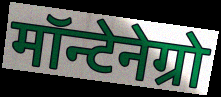
मॉन्टेनेग्रो